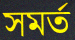
সমর্ত